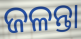
ଜଳନ୍ତା